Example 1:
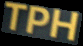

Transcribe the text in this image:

TPH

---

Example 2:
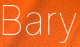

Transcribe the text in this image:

Bary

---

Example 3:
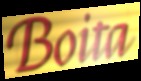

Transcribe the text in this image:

Boita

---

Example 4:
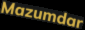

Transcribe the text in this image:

Mazumdar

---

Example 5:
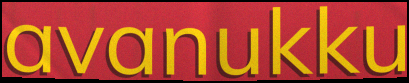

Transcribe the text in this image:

avanukku